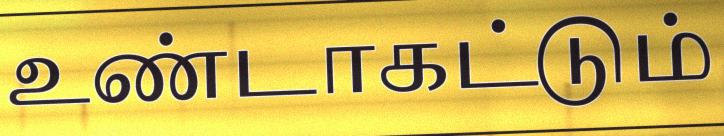
உண்டாகட்டும்